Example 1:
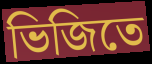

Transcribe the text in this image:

ভিজিতে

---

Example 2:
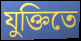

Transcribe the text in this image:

যুক্তিতে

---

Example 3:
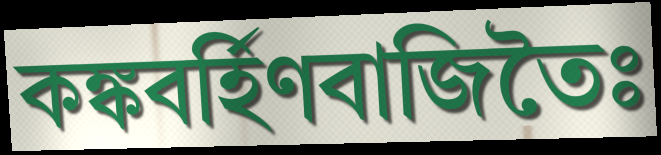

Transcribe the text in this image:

কঙ্কবর্হিণবাজিতৈঃ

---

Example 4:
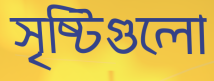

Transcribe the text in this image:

সৃষ্টিগুলো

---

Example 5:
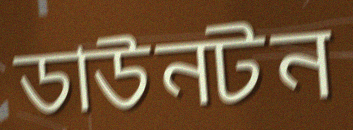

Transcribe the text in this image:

ডাউনটন